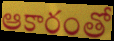
ఆకారంతో